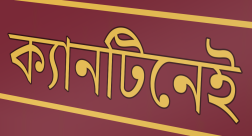
ক্যানটিনেই